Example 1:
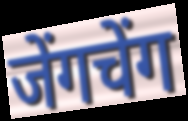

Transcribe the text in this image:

जेंगचेंग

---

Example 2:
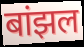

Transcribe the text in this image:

बांझल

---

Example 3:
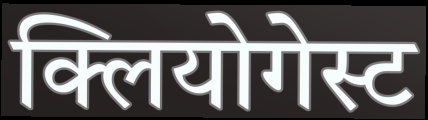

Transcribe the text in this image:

क्लियोगेस्ट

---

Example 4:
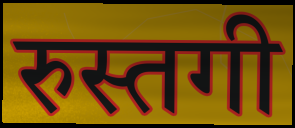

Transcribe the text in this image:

रुस्तगी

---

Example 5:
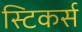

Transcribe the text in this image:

स्टिकर्स